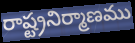
రాష్ట్రనిర్మాణము